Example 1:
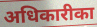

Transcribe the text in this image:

अधिकारीका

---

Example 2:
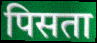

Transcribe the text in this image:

पिसता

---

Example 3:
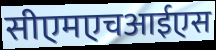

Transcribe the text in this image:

सीएमएचआईएस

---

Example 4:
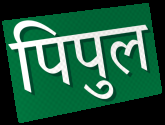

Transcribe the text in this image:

पिपुल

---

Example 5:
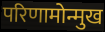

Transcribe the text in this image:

परिणामोन्मुख